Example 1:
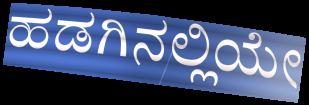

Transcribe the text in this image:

ಹಡಗಿನಲ್ಲಿಯೇ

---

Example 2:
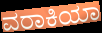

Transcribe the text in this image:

ವರಾಕಿಯಾ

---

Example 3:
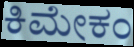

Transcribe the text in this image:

ಕಿಮೇಕಂ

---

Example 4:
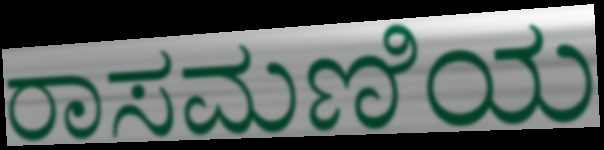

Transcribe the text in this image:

ರಾಸಮಣಿಯ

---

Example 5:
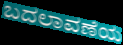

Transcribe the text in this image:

ಬದಲಾವಣೆಯ